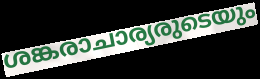
ശങ്കരാചാര്യരുടെയും